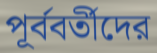
পূর্ববর্তীদের